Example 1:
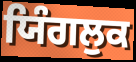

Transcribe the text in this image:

ਯਿੰਗਲੁਕ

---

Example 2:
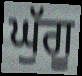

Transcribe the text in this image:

ਘੁੱਗੂ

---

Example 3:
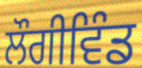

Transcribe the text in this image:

ਲੌਗੀਵਿੰਡ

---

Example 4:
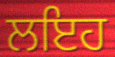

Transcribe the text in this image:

ਲਇਹ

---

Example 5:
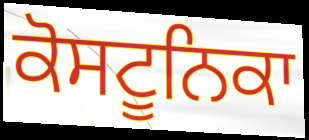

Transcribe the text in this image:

ਕੋਸਟੂਨਿਕਾ